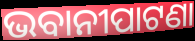
ଭବାନୀପାଟଣା